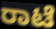
ರಾಟೆ